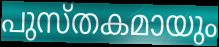
പുസ്തകമായും